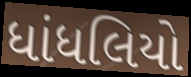
ધાંધલિયો